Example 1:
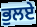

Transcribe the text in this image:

ਭੁਲਏ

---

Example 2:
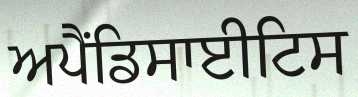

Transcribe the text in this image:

ਅਪੈਂਡਿਸਾਈਟਿਸ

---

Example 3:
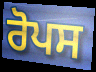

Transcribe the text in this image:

ਰੋਪਸ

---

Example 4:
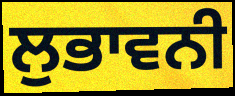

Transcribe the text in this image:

ਲੁਭਾਵਨੀ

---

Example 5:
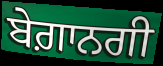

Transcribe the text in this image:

ਬੇਗ਼ਾਨਗੀ